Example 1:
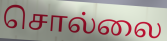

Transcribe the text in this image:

சொல்லை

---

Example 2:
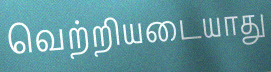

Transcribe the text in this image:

வெற்றியடையாது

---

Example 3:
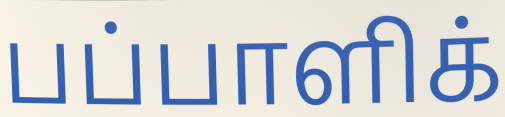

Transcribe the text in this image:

பப்பாளிக்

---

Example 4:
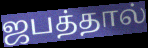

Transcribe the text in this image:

ஜபத்தால்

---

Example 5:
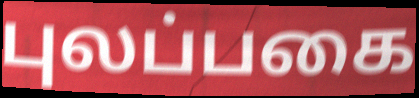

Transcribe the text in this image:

புலப்பகை